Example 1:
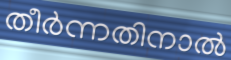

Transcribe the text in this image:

തീർന്നതിനാൽ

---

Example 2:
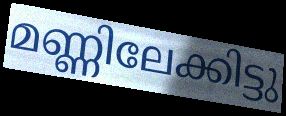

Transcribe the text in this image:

മണ്ണിലേക്കിട്ടു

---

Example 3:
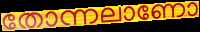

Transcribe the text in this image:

തോന്നലാണോ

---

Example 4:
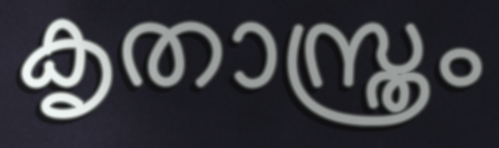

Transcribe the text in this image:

കൃതാസ്ത്രം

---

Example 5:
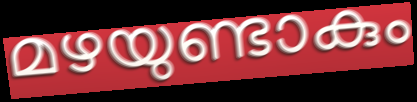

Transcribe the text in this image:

മഴയുണ്ടാകും